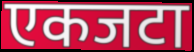
एकजटा